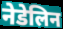
नेडेलिन